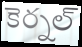
కెర్నల్